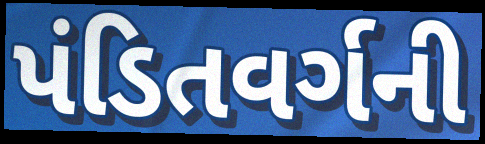
પંડિતવર્ગની